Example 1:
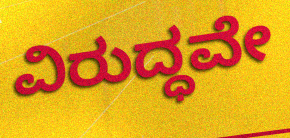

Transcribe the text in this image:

ವಿರುದ್ಧವೇ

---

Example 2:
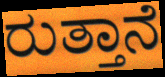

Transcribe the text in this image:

ರುತ್ತಾನೆ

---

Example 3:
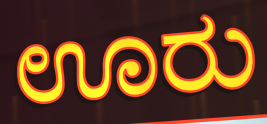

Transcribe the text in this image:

ಊರು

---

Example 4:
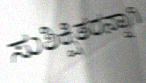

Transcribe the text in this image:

ಸುಶಿಕ್ಷಿತರನ್ನಾಗಿ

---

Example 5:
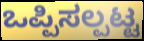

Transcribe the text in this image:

ಒಪ್ಪಿಸಲ್ಪಟ್ಟ